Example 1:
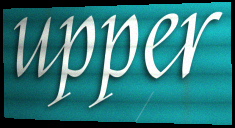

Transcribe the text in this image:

upper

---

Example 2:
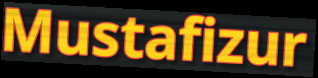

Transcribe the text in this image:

Mustafizur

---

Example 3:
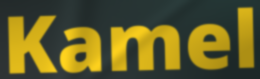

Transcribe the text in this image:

Kamel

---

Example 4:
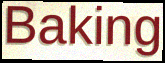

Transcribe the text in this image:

Baking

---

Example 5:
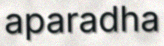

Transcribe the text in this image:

aparadha